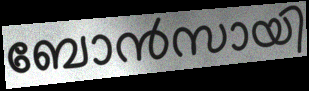
ബോൻസായി